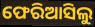
ଫେରିଆସିଲୁ